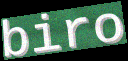
biro